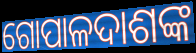
ଗୋପାଳଦାଶଙ୍କ